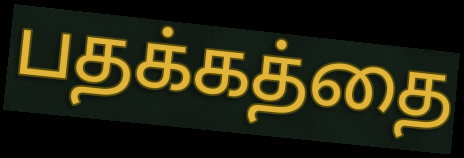
பதக்கத்தை